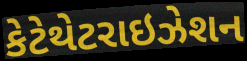
કેટેથેટરાઇઝેશન